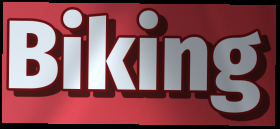
Biking